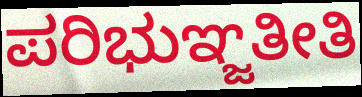
ಪರಿಭುಞ್ಜತೀತಿ